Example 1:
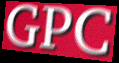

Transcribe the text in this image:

GPC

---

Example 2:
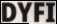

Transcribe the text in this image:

DYFI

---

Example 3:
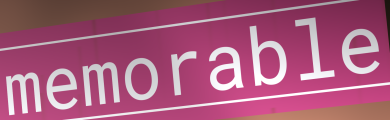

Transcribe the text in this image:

memorable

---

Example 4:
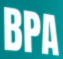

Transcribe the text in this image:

BPA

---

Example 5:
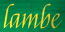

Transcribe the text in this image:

lambe